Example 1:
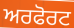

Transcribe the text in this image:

ਅਰਫੋਰਟ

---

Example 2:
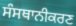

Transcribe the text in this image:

ਸੰਸਥਾਨੀਕਰਣ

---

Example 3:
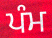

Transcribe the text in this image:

ਪੰਮ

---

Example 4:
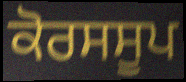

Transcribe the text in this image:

ਕੋਰਸਸੂਪ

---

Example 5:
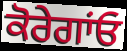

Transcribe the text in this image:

ਕੋਰੇਗਾਂਓ